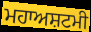
ਮਹਾਅਸ਼ਟਮੀ